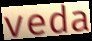
veda